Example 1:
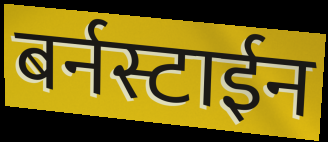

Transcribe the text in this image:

बर्नस्टाईन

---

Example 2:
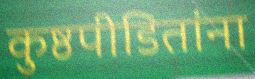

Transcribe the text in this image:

कुष्ठपीडितांना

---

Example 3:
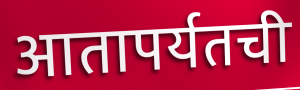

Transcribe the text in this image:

आतापर्यतची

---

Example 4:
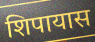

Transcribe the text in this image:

शिपायास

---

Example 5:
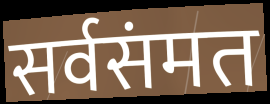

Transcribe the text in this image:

सर्वसंमत